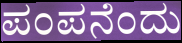
ಪಂಪನೆಂದು